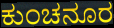
ಕುಂಚನೂರ